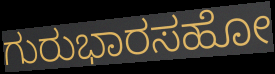
ಗುರುಭಾರಸಹೋ